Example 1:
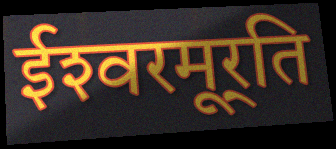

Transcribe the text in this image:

ईश्वरमूर्ति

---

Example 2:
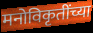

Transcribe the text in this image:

मनोविकृतींच्या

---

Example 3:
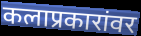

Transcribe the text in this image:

कलाप्रकारांवर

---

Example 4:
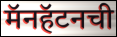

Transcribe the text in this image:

मॅनहॅटनची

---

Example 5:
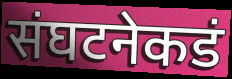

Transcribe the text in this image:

संघटनेकडं